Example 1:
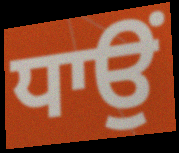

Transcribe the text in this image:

ਧਾਉਂ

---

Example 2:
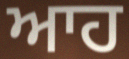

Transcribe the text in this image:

ਆਹ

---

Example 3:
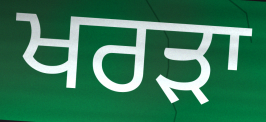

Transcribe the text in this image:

ਖਰੜਾ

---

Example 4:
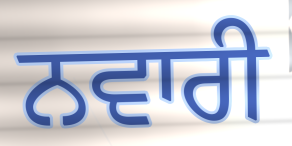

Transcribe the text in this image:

ਨਵਾਰੀ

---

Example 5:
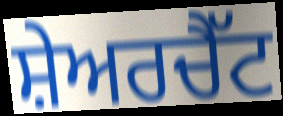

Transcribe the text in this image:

ਸ਼ੇਅਰਚੈੱਟ